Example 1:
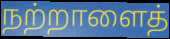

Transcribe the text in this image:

நற்றாளைத்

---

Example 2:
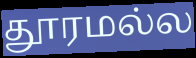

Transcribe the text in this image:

தூரமல்ல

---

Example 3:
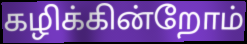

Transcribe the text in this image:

கழிக்கின்றோம்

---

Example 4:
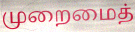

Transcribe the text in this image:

முறைமைத்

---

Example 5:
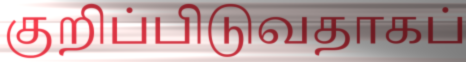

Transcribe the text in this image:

குறிப்பிடுவதாகப்